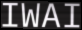
IWAI